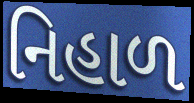
નિહાળ